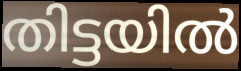
തിട്ടയിൽ